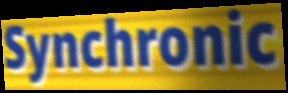
Synchronic